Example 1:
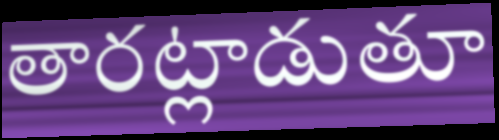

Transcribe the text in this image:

తారట్లాడుతూ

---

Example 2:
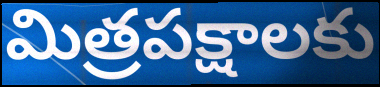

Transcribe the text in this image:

మిత్రపక్షాలకు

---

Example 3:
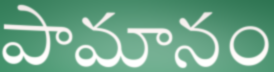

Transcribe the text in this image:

పామానం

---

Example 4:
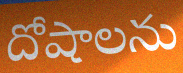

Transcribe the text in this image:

దోషాలను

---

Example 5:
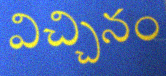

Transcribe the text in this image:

విచ్చినం